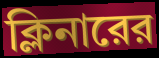
ক্লিনারের